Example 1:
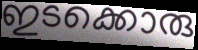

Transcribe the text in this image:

ഇടക്കൊരു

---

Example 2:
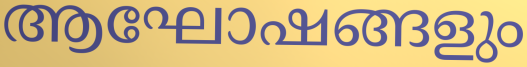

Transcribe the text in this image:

ആഘോഷങ്ങളും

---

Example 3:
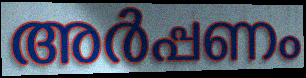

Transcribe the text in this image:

അർപ്പണം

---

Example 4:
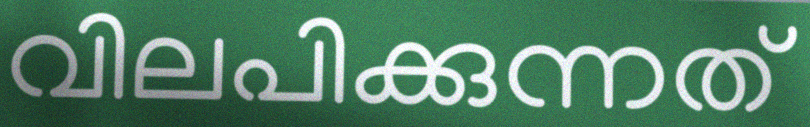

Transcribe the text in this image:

വിലപിക്കുന്നത്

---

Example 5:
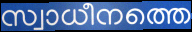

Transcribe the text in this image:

സ്വാധീനത്തെ